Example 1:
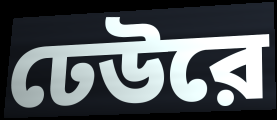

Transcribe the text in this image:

ঢেউরে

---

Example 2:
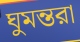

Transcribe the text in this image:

ঘুমন্তরা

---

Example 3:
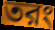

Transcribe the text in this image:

তরং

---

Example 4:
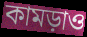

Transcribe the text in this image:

কামড়াও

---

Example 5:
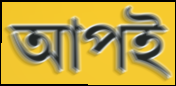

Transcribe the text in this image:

আপই